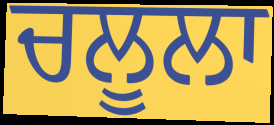
ਚਲੂਲਾ